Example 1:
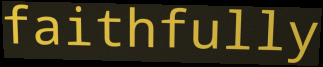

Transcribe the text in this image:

faithfully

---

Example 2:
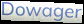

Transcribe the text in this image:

Dowager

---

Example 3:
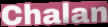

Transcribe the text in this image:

Chalan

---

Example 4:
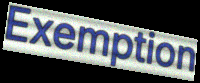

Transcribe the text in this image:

Exemption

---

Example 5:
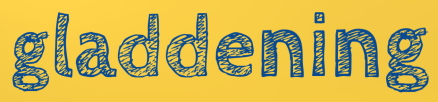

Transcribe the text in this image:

gladdening